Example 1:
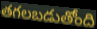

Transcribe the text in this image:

తగలబడుతోంది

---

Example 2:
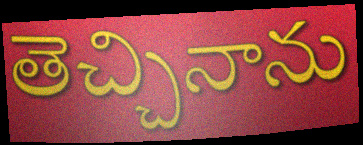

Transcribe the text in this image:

తెచ్చినాను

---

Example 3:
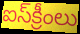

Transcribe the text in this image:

ఐస్‌క్రీంలు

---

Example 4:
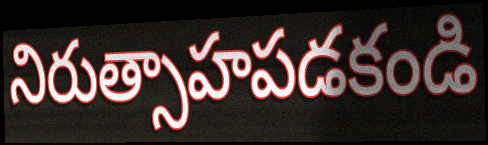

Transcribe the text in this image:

నిరుత్సాహపడకండి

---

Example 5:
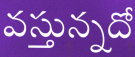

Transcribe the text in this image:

వస్తున్నదో